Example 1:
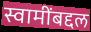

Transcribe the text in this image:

स्वामींबद्दल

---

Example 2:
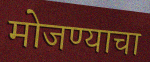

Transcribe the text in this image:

मोजण्याचा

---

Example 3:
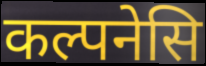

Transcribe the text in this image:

कल्पनेसि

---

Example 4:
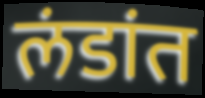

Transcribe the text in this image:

लंडांत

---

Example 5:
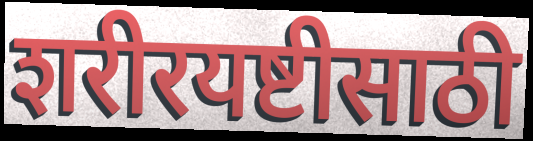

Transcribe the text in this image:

शरीरयष्टीसाठी